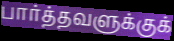
பார்த்தவளுக்குக்